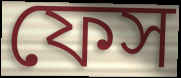
ফেস